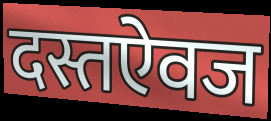
दस्तऐवज